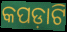
କପଡ଼ାଟି